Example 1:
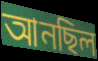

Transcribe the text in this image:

আনছিল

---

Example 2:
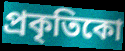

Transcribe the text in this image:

প্ৰকৃতিকো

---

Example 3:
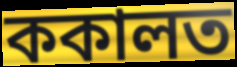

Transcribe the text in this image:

ককালত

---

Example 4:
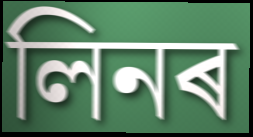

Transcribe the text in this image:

লিনৰ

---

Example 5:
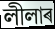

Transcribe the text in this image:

লীলাৰ